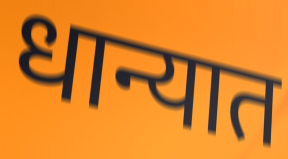
धान्यात